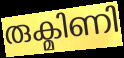
രുക്മിണി